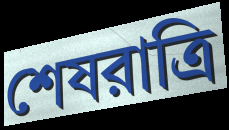
শেষরাত্রি